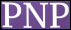
PNP